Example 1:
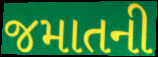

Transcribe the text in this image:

જમાતની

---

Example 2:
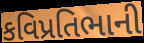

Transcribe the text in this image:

કવિપ્રતિભાની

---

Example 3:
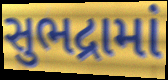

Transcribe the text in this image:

સુભદ્રામાં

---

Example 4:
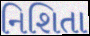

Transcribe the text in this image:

નિશિતા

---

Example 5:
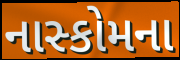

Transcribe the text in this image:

નાસ્કોમના